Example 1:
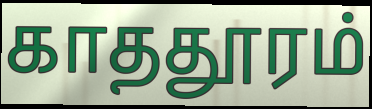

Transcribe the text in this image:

காததூரம்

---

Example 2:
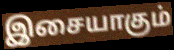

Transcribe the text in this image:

இசையாகும்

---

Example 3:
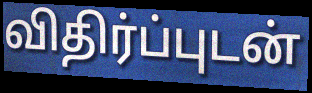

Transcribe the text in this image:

விதிர்ப்புடன்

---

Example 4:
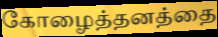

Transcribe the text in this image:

கோழைத்தனத்தை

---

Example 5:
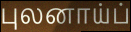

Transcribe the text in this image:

புலனாய்ப்